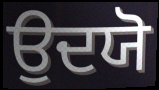
ਉਦਯੋ